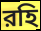
রহি